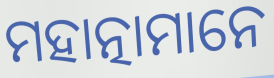
ମହାତ୍ନାମାନେ